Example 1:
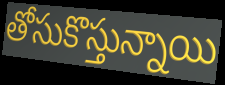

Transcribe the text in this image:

తోసుకొస్తున్నాయి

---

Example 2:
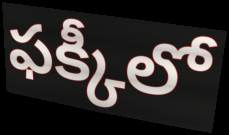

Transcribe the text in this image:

ఫక్కీలో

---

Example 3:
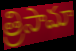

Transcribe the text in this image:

త్రిసామా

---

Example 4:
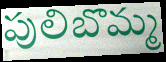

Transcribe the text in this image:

పులిబొమ్మ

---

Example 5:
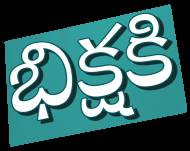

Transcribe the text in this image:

భిక్షకి